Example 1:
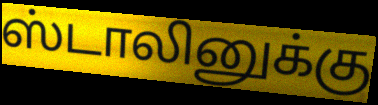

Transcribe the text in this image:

ஸ்டாலினுக்கு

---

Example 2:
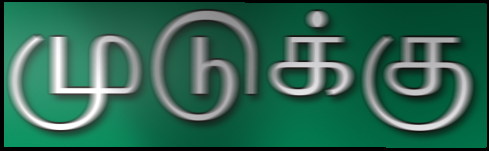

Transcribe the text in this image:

முடுக்கு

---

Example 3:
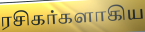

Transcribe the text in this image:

ரசிகர்களாகிய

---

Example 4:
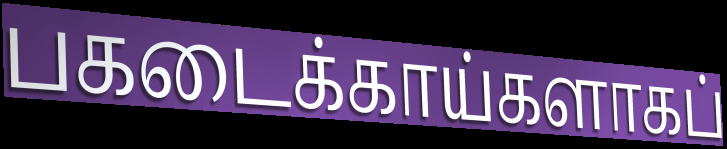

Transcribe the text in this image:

பகடைக்காய்களாகப்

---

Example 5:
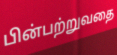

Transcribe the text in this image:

பின்பற்றுவதை